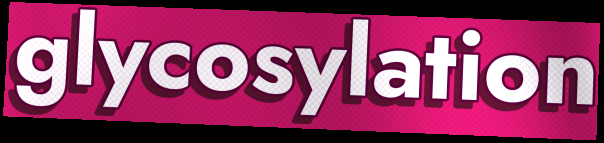
glycosylation